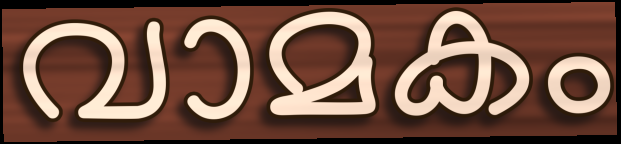
വാമകം